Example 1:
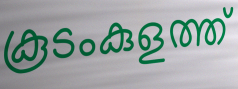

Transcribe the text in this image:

കൂടംകുളത്ത്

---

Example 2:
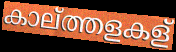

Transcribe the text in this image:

കാല്ത്തളകള്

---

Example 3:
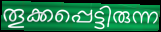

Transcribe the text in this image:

തൂക്കപ്പെട്ടിരുന്ന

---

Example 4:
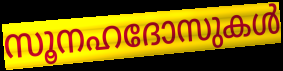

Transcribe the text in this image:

സൂനഹദോസുകൾ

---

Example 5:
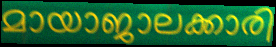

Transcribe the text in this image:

മായാജാലക്കാരി